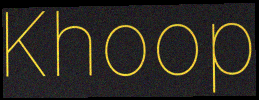
Khoop